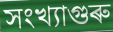
সংখ্যাগুৰু